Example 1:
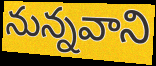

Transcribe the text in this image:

నున్నవాని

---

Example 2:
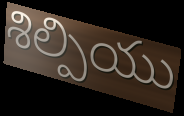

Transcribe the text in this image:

శిల్పియు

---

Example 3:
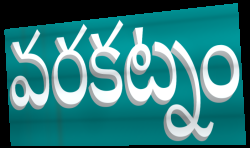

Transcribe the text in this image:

వరకట్నం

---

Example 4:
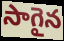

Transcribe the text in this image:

సాగైన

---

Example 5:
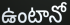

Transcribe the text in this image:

ఉంటానో